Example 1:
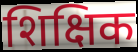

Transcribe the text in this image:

शिक्षिक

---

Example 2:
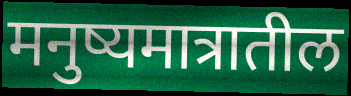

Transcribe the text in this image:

मनुष्यमात्रातील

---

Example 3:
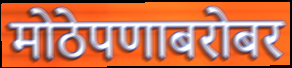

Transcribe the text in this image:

मोठेपणाबरोबर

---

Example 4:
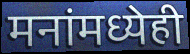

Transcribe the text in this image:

मनांमध्येही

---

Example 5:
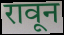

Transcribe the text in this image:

रावून